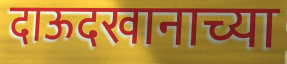
दाऊदखानाच्या